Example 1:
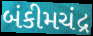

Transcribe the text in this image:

બંકીમચંદ્ર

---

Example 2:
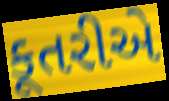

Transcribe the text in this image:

કૂતરીએ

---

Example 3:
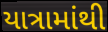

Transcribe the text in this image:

યાત્રામાંથી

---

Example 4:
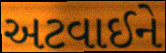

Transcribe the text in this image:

અટવાઈને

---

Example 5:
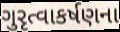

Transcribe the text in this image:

ગુરૃત્વાકર્ષણના